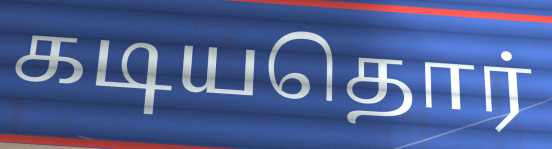
கடியதொர்